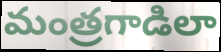
మంత్రగాడిలా